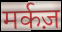
मर्कज़